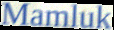
Mamluk